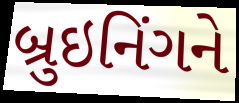
બ્રુઇનિંગને